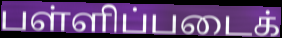
பள்ளிப்படைக்